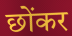
छोंकर